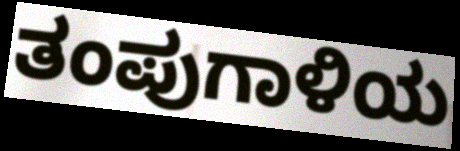
ತಂಪುಗಾಳಿಯ